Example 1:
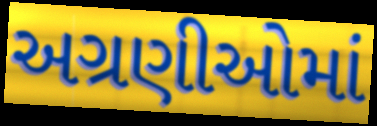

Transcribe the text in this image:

અગ્રણીઓમાં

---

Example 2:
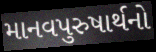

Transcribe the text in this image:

માનવપુરુષાર્થનો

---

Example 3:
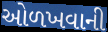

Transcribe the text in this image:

ઓળખવાની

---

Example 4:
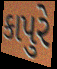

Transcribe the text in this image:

કાપુરે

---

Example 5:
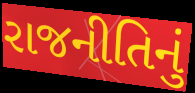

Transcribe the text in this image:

રાજનીતિનું